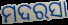
ମଦରସା